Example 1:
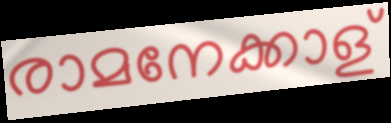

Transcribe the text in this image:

രാമനേക്കാള്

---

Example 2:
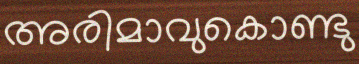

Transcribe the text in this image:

അരിമാവുകൊണ്ടു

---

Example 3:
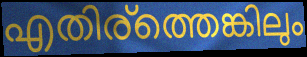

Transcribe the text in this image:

എതിര്ത്തെങ്കിലും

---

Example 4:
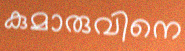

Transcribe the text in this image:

കുമാരുവിനെ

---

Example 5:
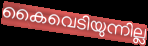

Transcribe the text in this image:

കൈവെടിയുന്നില്ല